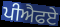
ਪੀਐਫਏ